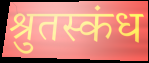
श्रुतस्कंध